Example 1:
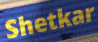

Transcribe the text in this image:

Shetkar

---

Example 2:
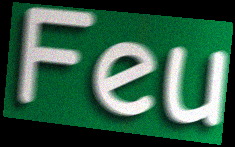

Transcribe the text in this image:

Feu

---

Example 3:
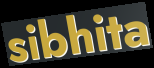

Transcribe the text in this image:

sibhita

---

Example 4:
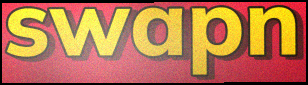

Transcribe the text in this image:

swapn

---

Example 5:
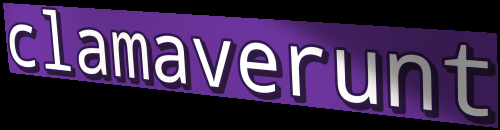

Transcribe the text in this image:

clamaverunt